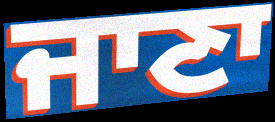
ਜਾਣਾ